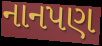
નાનપણ